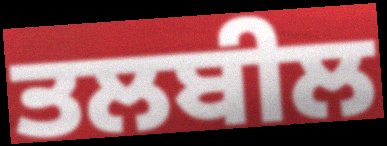
ਤਲਬੀਲ